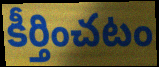
కీర్తించటం